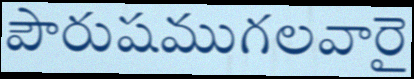
పౌరుషముగలవారై